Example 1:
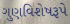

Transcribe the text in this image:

ગુણવિશેષરૂપે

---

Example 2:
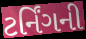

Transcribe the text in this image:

ટર્નિંગની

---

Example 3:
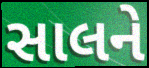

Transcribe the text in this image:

સાલને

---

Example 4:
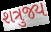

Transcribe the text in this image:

શત્રુજ્ય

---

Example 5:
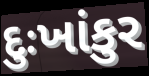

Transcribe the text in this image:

દુઃખાંકુર